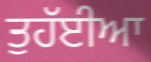
ਤੁਹੱਈਆ